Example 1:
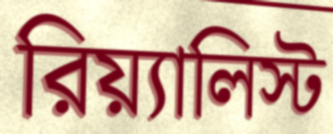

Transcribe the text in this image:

রিয়্যালিস্ট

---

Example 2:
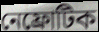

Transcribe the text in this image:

নেফ্রোটিক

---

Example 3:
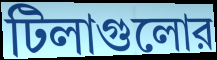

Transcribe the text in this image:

টিলাগুলোর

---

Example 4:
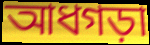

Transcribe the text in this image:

আধগড়া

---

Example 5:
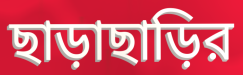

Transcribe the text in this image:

ছাড়াছাড়ির